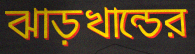
ঝাড়খান্ডের